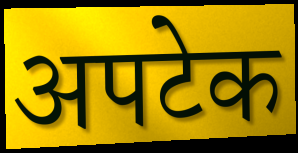
अपटेक